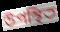
উপস্থিত